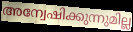
അന്വേഷിക്കുന്നുമില്ല